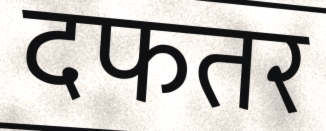
दफतर